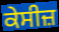
ਕੇਸੀਜ਼